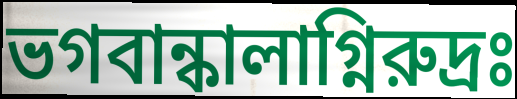
ভগবান্কালাগ্নিরুদ্রঃ